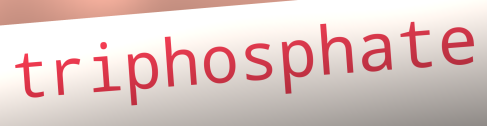
triphosphate